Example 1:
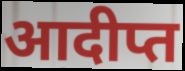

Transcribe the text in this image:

आदीप्त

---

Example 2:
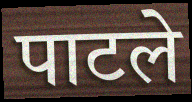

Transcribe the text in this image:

पाटले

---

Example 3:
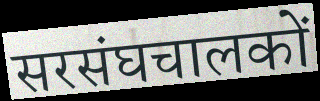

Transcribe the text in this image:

सरसंघचालकों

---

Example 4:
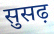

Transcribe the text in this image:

सुसढ़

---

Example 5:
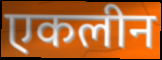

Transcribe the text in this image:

एकलीन